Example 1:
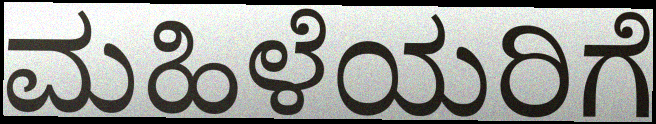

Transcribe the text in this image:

ಮಹಿಳೆಯರಿಗೆ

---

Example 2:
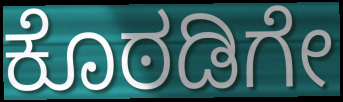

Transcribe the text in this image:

ಕೊಠಡಿಗೇ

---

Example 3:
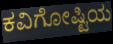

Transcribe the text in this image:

ಕವಿಗೋಷ್ಟಿಯ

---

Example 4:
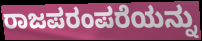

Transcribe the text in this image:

ರಾಜಪರಂಪರೆಯನ್ನು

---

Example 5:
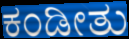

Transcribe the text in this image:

ಕಂಡೀತು